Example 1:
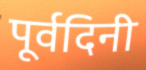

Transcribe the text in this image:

पूर्वदिनी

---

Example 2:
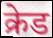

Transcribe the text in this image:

क्रेड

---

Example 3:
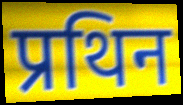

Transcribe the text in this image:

प्रथिन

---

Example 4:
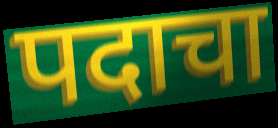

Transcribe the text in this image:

पदाचा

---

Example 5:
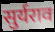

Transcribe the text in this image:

सुर्यराव